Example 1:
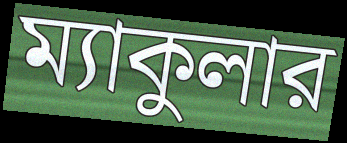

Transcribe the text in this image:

ম্যাকুলার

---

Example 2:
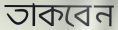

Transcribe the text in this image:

তাকবেন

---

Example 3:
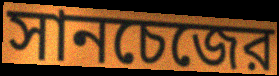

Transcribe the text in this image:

সানচেজের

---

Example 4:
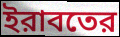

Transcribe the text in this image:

ইরাবতের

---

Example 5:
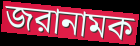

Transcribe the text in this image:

জরানামক